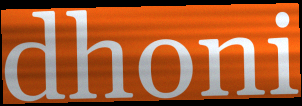
dhoni